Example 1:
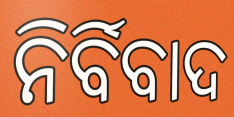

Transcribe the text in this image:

ନିର୍ବିବାଦ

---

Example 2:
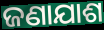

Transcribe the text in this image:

ଜଣାଯାଶ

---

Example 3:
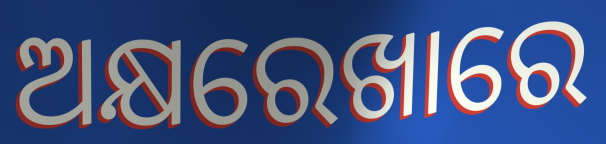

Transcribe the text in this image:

ଅକ୍ଷରେଖାରେ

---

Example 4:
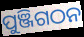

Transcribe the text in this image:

ପୁଞ୍ଜିଗଠନ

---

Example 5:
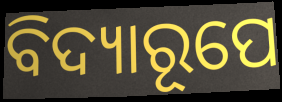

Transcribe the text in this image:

ବିଦ୍ୟାରୂପେ